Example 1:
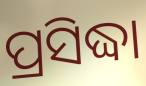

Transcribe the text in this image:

ପ୍ରସିଦ୍ଧା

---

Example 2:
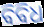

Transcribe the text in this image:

ବିବିଧ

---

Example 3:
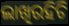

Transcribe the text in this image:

ଲାଖିରହିଚି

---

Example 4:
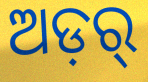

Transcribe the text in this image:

ଅଡ଼ର୍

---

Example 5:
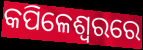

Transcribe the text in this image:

କପିଳେଶ୍ୱରରେ